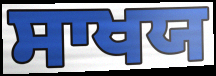
ਸਾਖਯ